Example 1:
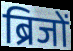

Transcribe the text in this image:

ब्रिजों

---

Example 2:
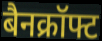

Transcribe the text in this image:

बैनक्रॉफ्ट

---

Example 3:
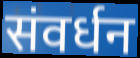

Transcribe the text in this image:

संवर्धन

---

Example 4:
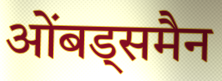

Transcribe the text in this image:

ओंबड्समैन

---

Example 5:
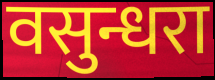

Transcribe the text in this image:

वसुन्धरा